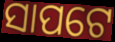
ସାପଟେ